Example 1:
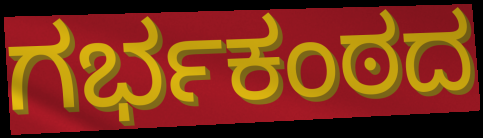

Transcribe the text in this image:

ಗರ್ಭಕಂಠದ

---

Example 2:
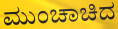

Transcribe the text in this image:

ಮುಂಚಾಚಿದ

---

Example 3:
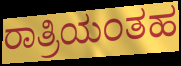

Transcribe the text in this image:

ರಾತ್ರಿಯಂತಹ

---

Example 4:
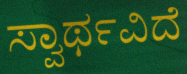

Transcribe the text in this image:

ಸ್ವಾರ್ಥವಿದೆ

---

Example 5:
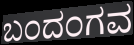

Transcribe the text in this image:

ಬಂದಂಗವ